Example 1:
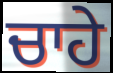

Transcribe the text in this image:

ਚਾਹੇ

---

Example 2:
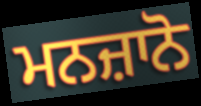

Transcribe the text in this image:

ਮਨਜ਼ਾਨੋ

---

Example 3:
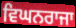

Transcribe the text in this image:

ਵਿਘਨਰਾਜਾ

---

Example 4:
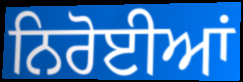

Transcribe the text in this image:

ਨਿਰੋਈਆਂ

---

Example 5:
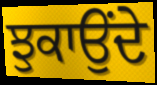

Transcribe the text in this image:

ਝੁਕਾਉੰਦੇ